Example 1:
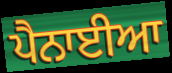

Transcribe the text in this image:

ਪੈਨਾਈਆ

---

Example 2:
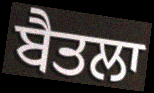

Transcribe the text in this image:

ਬੈਤਲਾ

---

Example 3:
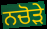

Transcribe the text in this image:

ਨਚੋੜੇ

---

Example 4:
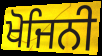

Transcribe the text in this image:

ਖੋਜਿਨੀ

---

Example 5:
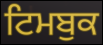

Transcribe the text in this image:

ਟਿਮਬੁਕ